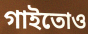
গাইতোও